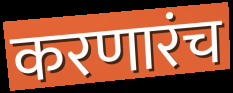
करणारंच